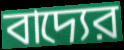
বাদ্যের